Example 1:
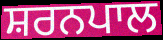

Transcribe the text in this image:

ਸ਼ਰਨਪਾਲ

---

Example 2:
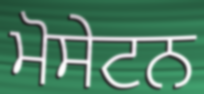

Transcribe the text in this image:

ਮੋਸੇਟਨ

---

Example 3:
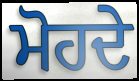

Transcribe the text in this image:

ਮੋਹਦੇ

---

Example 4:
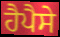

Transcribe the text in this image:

ਹੈਪੈਸੇ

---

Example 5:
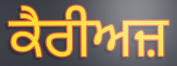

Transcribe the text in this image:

ਕੈਰੀਅਜ਼